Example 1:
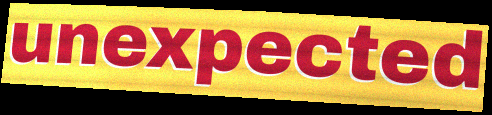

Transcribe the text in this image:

unexpected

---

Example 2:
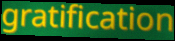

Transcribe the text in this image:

gratification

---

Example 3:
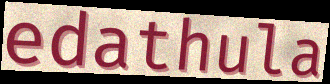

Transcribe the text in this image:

edathula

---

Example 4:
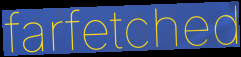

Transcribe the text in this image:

farfetched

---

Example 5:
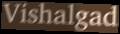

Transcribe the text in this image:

Vishalgad